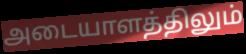
அடையாளத்திலும்